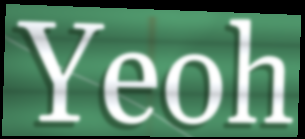
Yeoh